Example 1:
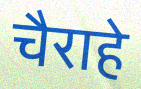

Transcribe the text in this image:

चैराहे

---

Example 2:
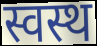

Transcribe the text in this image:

स्वस्थ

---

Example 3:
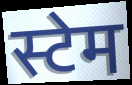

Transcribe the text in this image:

स्टेम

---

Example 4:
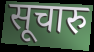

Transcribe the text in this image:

सूचारु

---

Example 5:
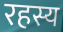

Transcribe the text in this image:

रहस्य